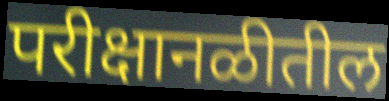
परीक्षानळीतील